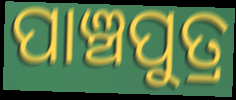
ପାଞ୍ଚପୁତ୍ର